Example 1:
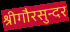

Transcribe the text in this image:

श्रीगौरसुन्दर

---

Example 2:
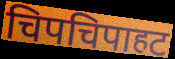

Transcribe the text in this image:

चिपचिपाहट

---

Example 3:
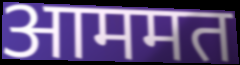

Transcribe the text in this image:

आममत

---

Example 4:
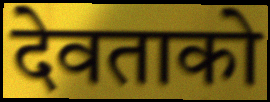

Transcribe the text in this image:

देवताको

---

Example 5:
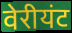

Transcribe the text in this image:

वेरीयंट